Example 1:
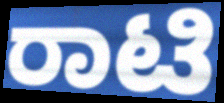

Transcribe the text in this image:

ರಾಟಿ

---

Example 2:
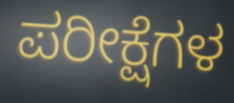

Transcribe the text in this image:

ಪರೀಕ್ಷೆಗಳ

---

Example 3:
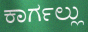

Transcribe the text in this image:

ಕಾರ್ಗಲ್ಲು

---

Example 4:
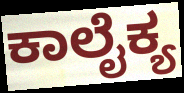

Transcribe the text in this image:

ಕಾಲೈಕ್ಯ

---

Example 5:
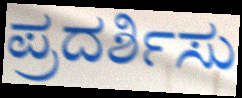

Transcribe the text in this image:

ಪ್ರದರ್ಶಿಸು